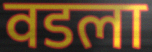
वडला